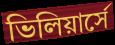
ভিলিয়ার্সে